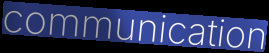
communication